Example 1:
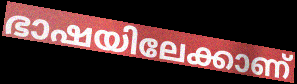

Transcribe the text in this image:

ഭാഷയിലേക്കാണ്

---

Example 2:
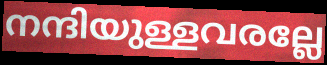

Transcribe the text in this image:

നന്ദിയുള്ളവരല്ലേ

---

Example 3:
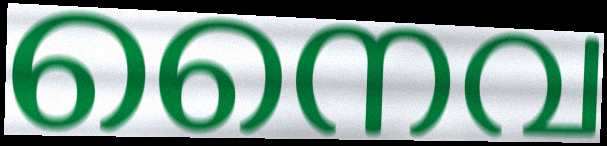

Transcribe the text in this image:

നൈവ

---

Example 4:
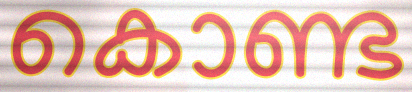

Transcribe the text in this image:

കൊണ്ട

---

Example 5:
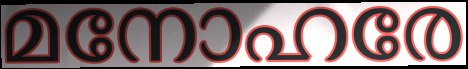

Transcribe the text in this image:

മനോഹരേ